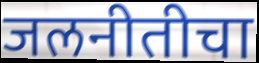
जलनीतीचा